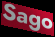
Sago